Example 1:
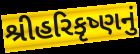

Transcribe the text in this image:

શ્રીહરિકૃષ્ણનું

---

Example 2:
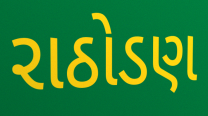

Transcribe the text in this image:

રાઠોડણ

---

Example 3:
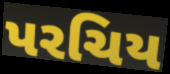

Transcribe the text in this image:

પરચિય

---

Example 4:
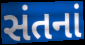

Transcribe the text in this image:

સંતનાં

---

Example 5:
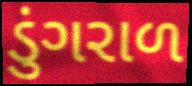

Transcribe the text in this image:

ડુંગરાળ